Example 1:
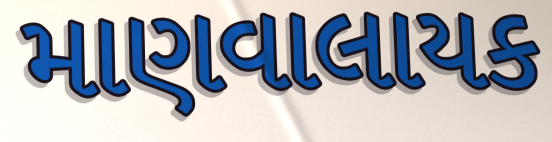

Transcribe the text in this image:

માણવાલાયક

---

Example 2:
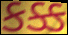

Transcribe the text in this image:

કક્ક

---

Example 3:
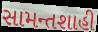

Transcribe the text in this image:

સામન્તશાહી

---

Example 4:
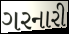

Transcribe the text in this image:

ગરનારી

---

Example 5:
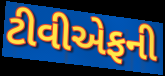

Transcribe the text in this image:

ટીવીએફની